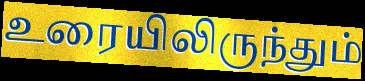
உரையிலிருந்தும்